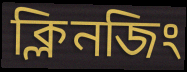
ক্লিনজিং